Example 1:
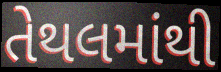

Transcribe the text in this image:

તેથલમાંથી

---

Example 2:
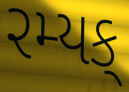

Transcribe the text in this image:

રમ્યક્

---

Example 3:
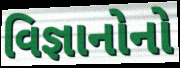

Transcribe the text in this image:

વિજ્ઞાનોનો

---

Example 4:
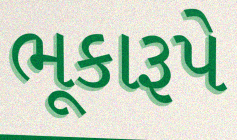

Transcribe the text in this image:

ભૂકારૂપે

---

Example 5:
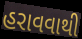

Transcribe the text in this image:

હરાવવાથી